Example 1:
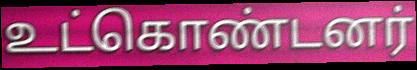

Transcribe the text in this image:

உட்கொண்டனர்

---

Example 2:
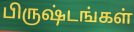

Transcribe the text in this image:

பிருஷ்டங்கள்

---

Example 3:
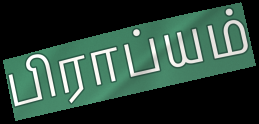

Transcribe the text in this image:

பிராப்யம்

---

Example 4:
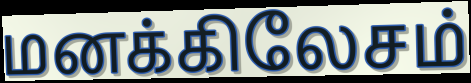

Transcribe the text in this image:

மனக்கிலேசம்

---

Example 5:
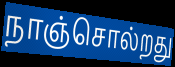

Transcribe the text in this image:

நாஞ்சொல்றது